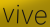
vive